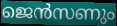
ജെൻസണും